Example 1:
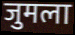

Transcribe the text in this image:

जुमला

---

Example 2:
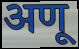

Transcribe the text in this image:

अणू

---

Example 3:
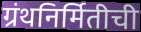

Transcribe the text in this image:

ग्रंथनिर्मितीची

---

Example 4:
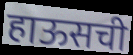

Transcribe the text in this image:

हाऊसची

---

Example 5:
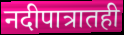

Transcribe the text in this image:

नदीपात्रातही